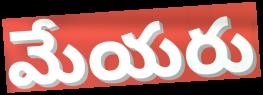
మేయరు